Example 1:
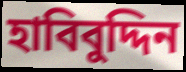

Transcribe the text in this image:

হাবিবুদ্দিন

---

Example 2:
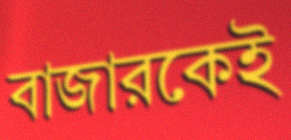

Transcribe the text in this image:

বাজারকেই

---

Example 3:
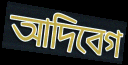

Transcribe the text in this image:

আদিবেগ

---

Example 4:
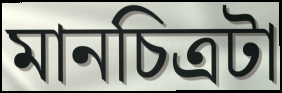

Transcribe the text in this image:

মানচিত্রটা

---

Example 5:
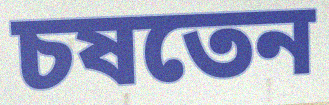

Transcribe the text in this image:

চষতেন